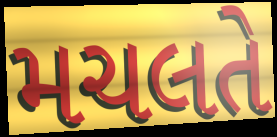
મચલતે